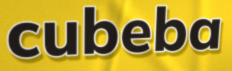
cubeba